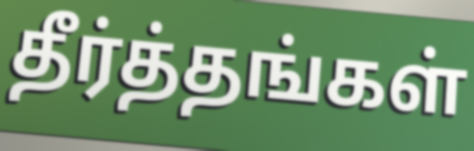
தீர்த்தங்கள்